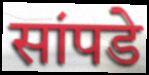
सांपडे